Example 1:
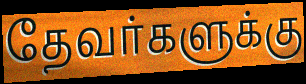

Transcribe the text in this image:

தேவர்களுக்கு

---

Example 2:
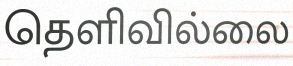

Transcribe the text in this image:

தெளிவில்லை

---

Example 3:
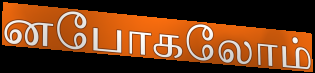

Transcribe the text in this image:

னபோகலோம்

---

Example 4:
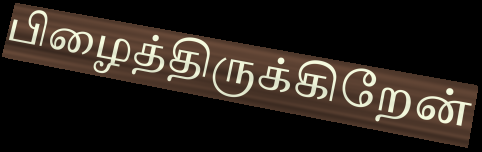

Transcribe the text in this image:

பிழைத்திருக்கிறேன்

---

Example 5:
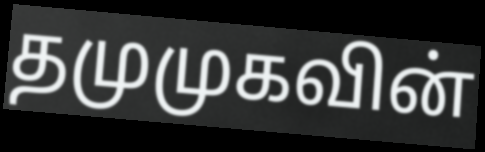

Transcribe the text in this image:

தமுமுகவின்